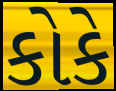
કોકે